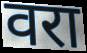
वरा